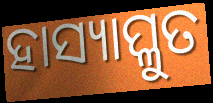
ହାସ୍ୟାପ୍ଳୁତ